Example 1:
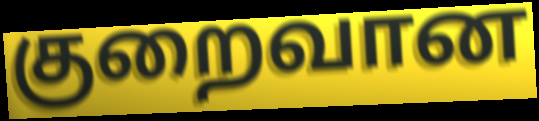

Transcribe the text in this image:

குறைவான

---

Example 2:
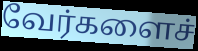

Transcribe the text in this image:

வேர்களைச்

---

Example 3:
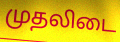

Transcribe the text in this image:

முதலிடை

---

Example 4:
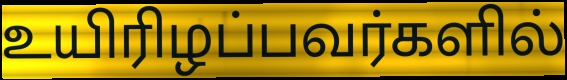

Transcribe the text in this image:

உயிரிழப்பவர்களில்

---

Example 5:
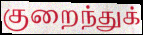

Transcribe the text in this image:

குறைந்துக்